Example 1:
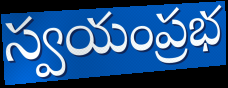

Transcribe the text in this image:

స్వయంప్రభ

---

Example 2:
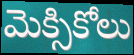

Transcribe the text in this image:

మెక్సికోలు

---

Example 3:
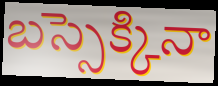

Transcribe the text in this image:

బస్సెక్కినా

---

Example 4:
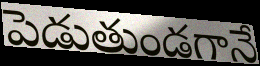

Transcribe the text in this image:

పెడుతుండగానే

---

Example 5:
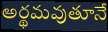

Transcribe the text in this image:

అర్థమవుతూనే